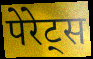
पेरेट्स